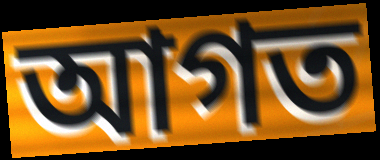
আগত